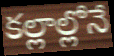
కల్లాల్లోనే